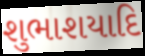
શુભાશયાદિ